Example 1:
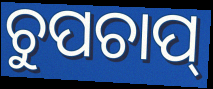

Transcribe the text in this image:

ଚୁପଚାପ୍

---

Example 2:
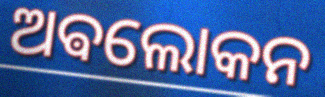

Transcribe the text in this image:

ଅଵଲୋକନ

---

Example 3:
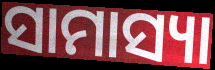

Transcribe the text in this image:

ସାମାସ୍ୟା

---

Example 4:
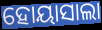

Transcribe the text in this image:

ହୋୟାସାଲା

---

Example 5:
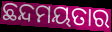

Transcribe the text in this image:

ଛନ୍ଦମୟତାର